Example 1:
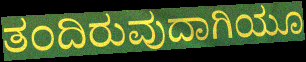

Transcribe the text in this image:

ತಂದಿರುವುದಾಗಿಯೂ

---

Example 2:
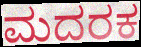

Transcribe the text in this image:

ಮದರಕ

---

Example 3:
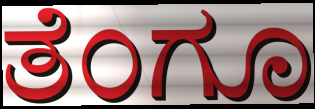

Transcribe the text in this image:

ತೆಂಗೂ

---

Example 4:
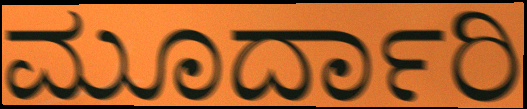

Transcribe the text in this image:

ಮೂರ್ದಾರಿ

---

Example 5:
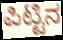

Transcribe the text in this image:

ಪಿಟ್ಟಿನ